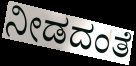
ನೀಡದಂತೆ